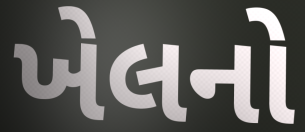
ખેલનો